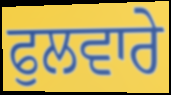
ਫੁਲਵਾਰੇ